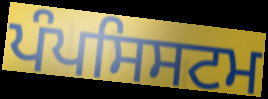
ਪੰਪਸਿਸਟਮ